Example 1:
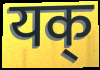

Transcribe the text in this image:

यक्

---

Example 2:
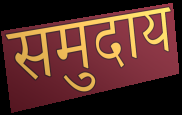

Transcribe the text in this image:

समुदाय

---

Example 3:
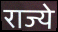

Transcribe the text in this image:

राज्ये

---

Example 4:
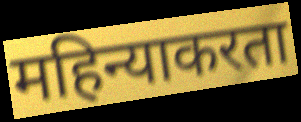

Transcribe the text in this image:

महिन्याकरता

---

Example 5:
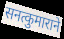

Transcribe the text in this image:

सनत्कुमाराने